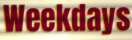
Weekdays